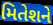
મિતેશને